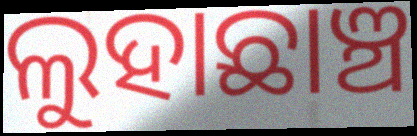
ଲୁହାଛାଞ୍ଚ